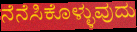
ನೆನೆಸಿಕೊಳ್ಳುವುದು